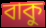
বাকু